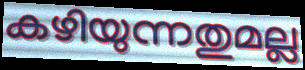
കഴിയുന്നതുമല്ല